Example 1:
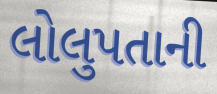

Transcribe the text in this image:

લોલુપતાની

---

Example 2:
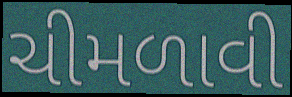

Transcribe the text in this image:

ચીમળાવી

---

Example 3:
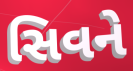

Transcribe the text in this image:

સિવને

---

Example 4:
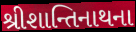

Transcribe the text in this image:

શ્રીશાન્તિનાથના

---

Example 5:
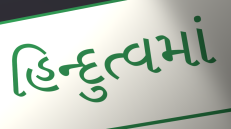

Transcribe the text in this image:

હિન્દુત્વમાં